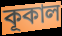
কূকাল